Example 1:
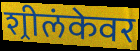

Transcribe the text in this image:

श्रीलंकेवर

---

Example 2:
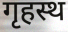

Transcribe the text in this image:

गृहस्थ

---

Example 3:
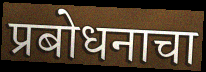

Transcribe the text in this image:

प्रबोधनाचा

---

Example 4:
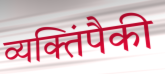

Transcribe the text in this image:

व्यक्तिंपैकी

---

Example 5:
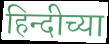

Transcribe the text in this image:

हिन्दीच्या